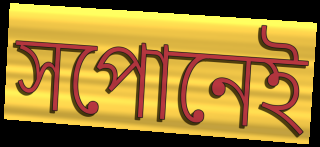
সপোনেই